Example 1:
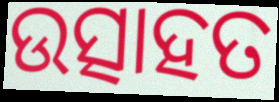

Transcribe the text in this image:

ଉତ୍ସାହତ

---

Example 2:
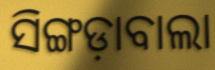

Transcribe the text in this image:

ସିଙ୍ଗଡ଼ାବାଲା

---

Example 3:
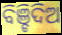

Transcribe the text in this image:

ବିଞ୍ଚିଦିଅ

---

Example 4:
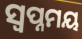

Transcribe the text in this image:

ସ୍ଵପ୍ନମୟ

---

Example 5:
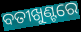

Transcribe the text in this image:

ବତୀଖୁଣ୍ଟରେ